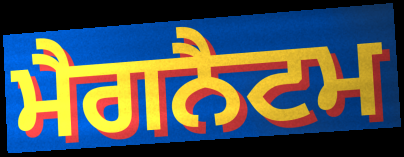
ਮੈਗਨੈਟਮ